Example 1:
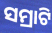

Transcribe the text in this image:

ସମ୍ରାଟି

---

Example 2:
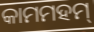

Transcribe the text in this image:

କାମମହମ୍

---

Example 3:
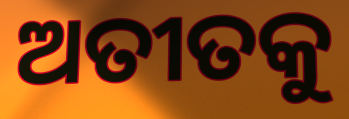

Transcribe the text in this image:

ଅତୀତକୁ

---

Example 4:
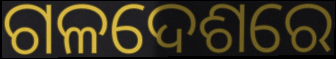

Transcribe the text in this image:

ଗଳଦେଶରେ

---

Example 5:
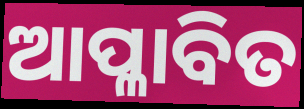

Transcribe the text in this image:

ଆପ୍ଳାବିତ